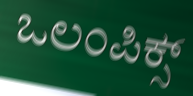
ಒಲಂಪಿಕ್ಸ್